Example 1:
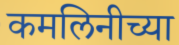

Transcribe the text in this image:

कमलिनीच्या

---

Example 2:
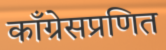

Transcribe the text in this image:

काँग्रेसप्रणित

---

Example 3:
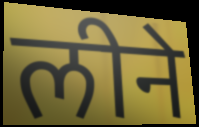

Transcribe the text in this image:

लीने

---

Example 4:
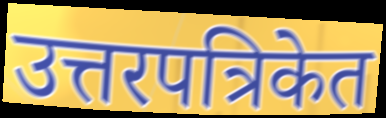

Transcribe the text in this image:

उत्तरपत्रिकेत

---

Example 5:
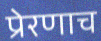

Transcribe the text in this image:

प्रेरणाच